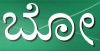
ಬೋ